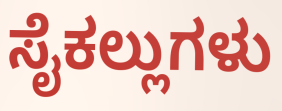
ಸೈಕಲ್ಲುಗಳು